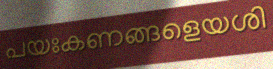
പയഃകണങ്ങളെയശി